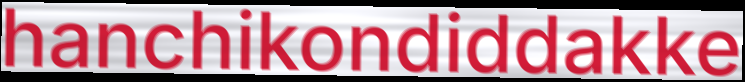
hanchikondiddakke